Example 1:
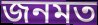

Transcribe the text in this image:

জনমত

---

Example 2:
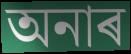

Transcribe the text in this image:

অনাৰ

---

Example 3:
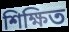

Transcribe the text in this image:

শিক্ষিত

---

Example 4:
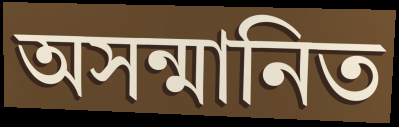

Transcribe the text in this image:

অসন্মানিত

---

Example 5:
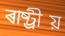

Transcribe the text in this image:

ৰাষ্ট্ৰীয়